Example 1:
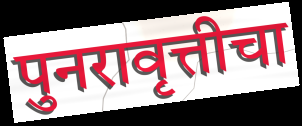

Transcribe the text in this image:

पुनरावृत्तीचा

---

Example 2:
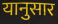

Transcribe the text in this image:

यानुसार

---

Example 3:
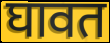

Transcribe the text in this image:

घावत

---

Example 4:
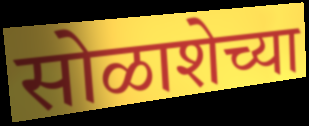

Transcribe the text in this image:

सोळाशेच्या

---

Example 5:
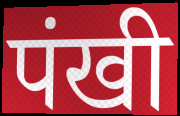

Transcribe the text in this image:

पंखी